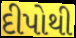
દીપોથી